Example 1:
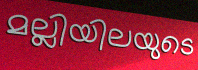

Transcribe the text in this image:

മല്ലിയിലയുടെ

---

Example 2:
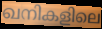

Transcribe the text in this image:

ഖനികളിലെ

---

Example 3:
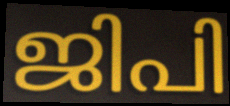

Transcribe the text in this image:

ജിപി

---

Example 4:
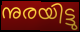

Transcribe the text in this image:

നുരയിട്ടു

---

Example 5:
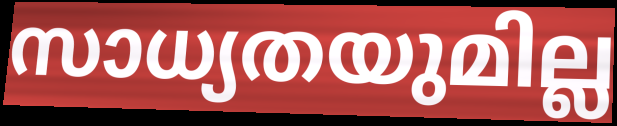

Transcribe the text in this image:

സാധ്യതയുമില്ല